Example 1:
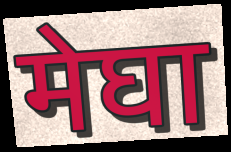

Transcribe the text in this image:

मेघा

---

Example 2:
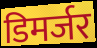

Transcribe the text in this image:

डिमर्जर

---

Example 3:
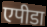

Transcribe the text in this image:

एपीडा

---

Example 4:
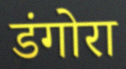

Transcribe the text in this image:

डंगोरा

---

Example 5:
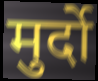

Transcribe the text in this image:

मुर्दो